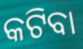
କଟିବା